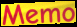
Memo